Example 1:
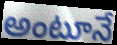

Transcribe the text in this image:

అంటూనే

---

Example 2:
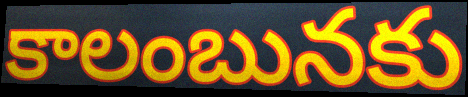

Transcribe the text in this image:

కాలంబునకు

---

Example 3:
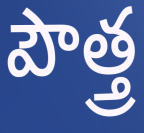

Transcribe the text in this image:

పౌత్త్ర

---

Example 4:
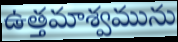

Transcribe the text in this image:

ఉత్తమాశ్వమును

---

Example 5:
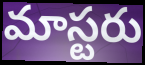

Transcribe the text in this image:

మాస్టరు